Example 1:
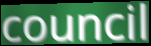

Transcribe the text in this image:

council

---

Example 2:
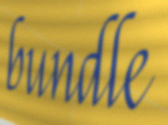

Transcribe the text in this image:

bundle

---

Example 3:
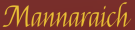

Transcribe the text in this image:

Mannaraich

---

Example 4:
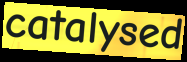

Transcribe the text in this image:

catalysed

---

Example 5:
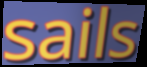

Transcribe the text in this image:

sails